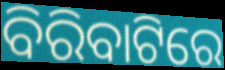
ବିରିବାଟିରେ